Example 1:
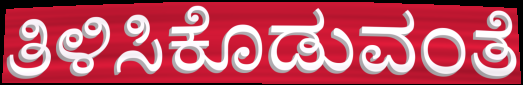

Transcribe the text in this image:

ತಿಳಿಸಿಕೊಡುವಂತೆ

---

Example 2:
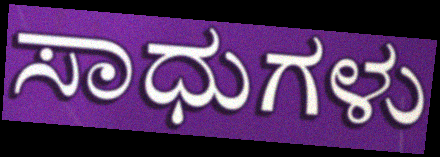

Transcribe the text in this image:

ಸಾಧುಗಳು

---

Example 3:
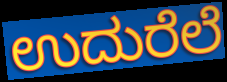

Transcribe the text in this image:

ಉದುರೆಲೆ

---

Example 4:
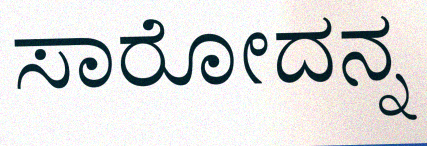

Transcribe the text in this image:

ಸಾರೋದನ್ನ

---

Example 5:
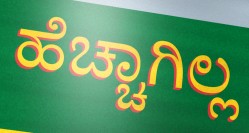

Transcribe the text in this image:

ಹೆಚ್ಚಾಗಿಲ್ಲ